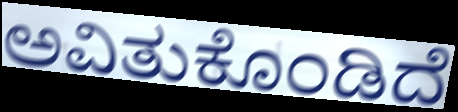
ಅವಿತುಕೊಂಡಿದೆ